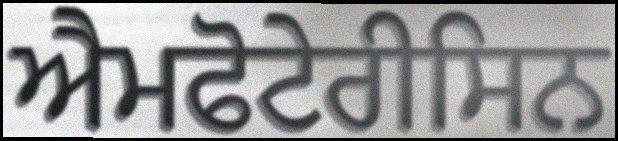
ਐਮਫੋਟੇਰੀਸਿਨ